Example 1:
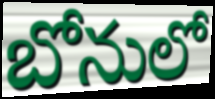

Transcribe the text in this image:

బోనులో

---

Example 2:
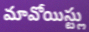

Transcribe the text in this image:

మావోయిస్ట్లు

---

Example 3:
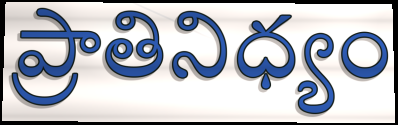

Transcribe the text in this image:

ప్రాతినిధ్యం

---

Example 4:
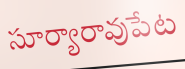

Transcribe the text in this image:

సూర్యారావుపేట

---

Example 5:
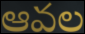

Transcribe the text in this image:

ఆవల